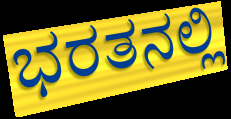
ಭರತನಲ್ಲಿ